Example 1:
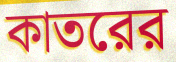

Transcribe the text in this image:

কাতরের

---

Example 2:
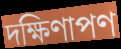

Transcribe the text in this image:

দক্ষিণাপণ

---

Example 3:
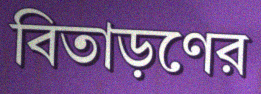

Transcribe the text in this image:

বিতাড়ণের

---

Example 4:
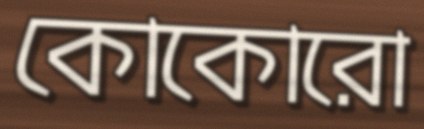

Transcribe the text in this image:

কোকোরো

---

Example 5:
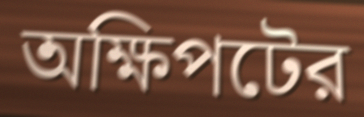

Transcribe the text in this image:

অক্ষিপটের